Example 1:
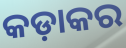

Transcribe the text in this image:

କଡ଼ାକର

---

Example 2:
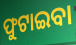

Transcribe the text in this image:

ଫୁଟାଇବା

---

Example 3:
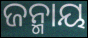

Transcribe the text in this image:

ଜନ୍ମାୟ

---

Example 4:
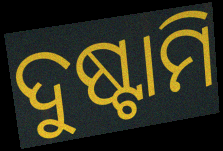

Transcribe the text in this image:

ଦୁଷ୍ଟାମି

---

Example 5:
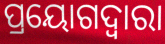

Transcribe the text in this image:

ପ୍ରୟୋଗଦ୍ଵାରା